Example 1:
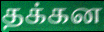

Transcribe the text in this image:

தக்கன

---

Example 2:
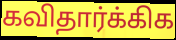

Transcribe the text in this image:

கவிதார்க்கிக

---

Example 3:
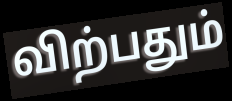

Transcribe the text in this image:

விற்பதும்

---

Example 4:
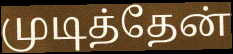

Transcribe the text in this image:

முடித்தேன்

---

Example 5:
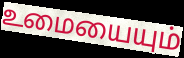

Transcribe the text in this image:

உமையையும்